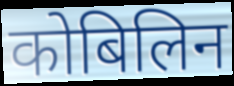
कोबिलिन